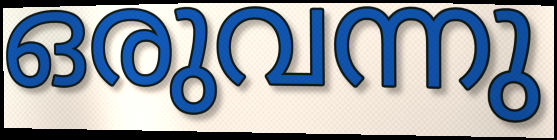
ഒരുവന്നു